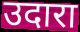
उदारा